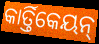
କାର୍ତ୍ତିକେୟନ୍